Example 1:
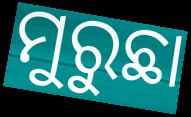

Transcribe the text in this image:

ମୁରୁଛା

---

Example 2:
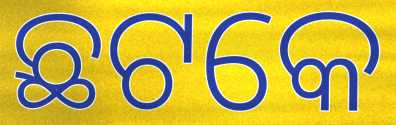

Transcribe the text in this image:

ଛଟକେ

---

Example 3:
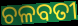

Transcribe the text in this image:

ଚଳବତୀ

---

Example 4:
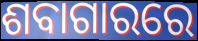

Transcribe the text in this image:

ଶବାଗାରରେ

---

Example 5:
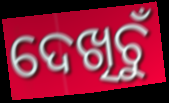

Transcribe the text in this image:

ଦେଖିଚୁଁ